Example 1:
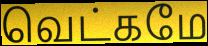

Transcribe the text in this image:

வெட்கமே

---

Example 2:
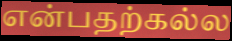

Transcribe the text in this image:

என்பதற்கல்ல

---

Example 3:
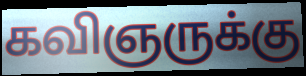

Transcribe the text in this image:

கவிஞருக்கு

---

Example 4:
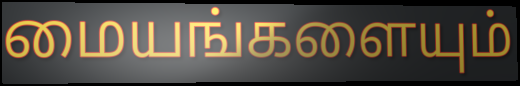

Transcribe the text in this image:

மையங்களையும்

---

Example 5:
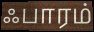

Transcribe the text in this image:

ஃபாரம்